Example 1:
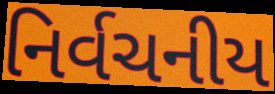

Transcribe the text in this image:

નિર્વચનીય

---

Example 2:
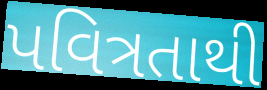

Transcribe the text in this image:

પવિત્રતાથી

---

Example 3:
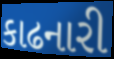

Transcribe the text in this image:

કાઢનારી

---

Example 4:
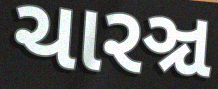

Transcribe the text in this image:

ચારઞ્ચ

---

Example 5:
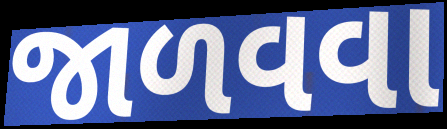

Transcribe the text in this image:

જાળવવા